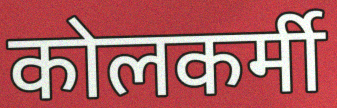
कोलकर्मी